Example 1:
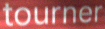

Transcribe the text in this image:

tourner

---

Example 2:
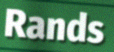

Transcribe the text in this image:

Rands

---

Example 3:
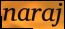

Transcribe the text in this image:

naraj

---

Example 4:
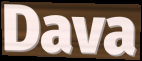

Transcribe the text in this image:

Dava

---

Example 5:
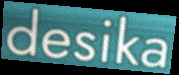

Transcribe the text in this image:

desika